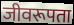
जीवरूपता